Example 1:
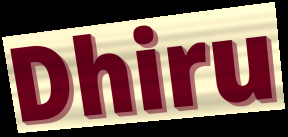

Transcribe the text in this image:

Dhiru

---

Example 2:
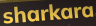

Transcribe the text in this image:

sharkara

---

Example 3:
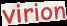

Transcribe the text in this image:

virion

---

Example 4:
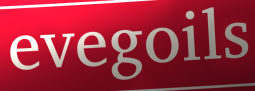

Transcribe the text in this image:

evegoils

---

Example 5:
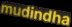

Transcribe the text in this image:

mudindha